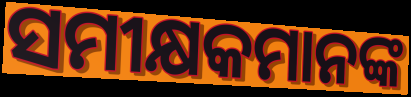
ସମୀକ୍ଷକମାନଙ୍କ